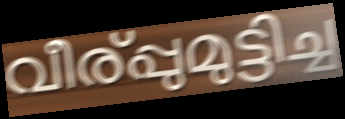
വീര്പ്പുമുട്ടിച്ച